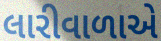
લારીવાળાએ